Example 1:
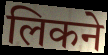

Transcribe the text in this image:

लिकने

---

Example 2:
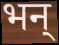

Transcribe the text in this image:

भन्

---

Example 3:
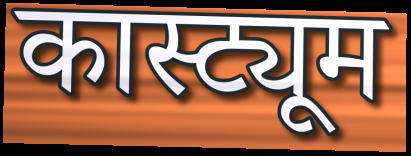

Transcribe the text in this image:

कास्ट्यूम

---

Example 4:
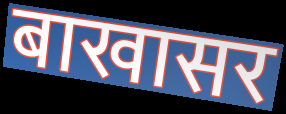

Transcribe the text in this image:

बाखासर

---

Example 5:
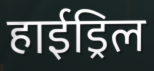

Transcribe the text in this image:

हाईड्रिल